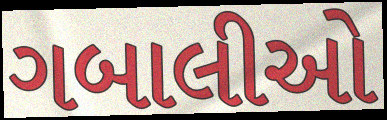
ગબાલીઓ